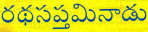
రథసప్తమినాడు